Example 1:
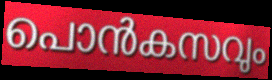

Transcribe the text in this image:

പൊൻകസവും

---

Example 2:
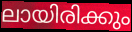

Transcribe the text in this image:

ലായിരിക്കും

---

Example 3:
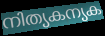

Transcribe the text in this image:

നിത്യകന്യക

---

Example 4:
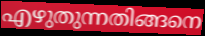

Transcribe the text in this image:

എഴുതുന്നതിങ്ങനെ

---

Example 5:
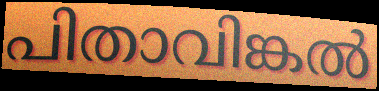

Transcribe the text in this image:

പിതാവിങ്കൽ